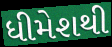
ધીમેશથી